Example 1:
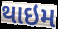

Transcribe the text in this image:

થાઇમ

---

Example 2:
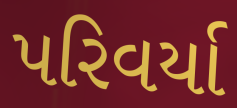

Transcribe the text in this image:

પરિવર્યા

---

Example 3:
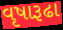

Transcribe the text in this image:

વૃષારૂઢા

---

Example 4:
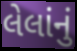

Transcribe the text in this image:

લેલાંનું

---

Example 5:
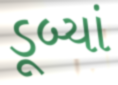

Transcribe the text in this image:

ડૂબ્યાં